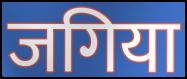
जगिया